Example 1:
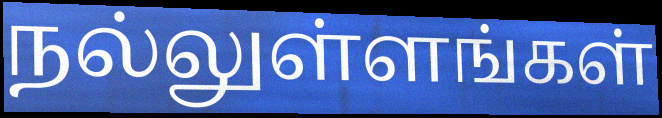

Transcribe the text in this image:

நல்லுள்ளங்கள்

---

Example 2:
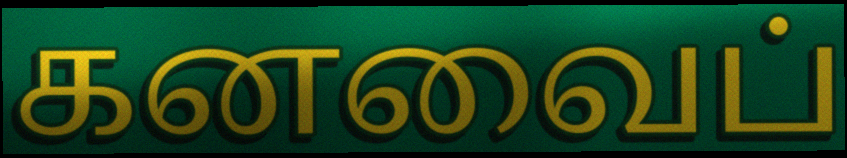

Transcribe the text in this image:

கனவைப்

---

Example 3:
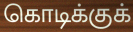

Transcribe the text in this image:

கொடிக்குக்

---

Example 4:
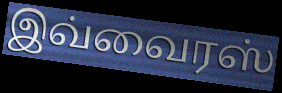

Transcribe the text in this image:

இவ்வைரஸ்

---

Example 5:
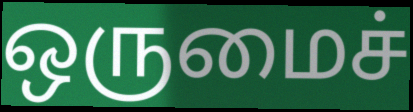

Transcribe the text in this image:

ஒருமைச்